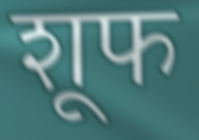
शूफ